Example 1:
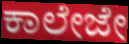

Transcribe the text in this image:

ಕಾಲೇಜೇ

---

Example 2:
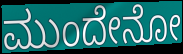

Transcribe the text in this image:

ಮುಂದೇನೋ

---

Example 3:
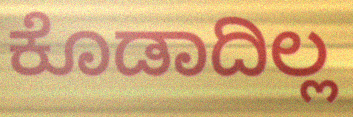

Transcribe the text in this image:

ಕೊಡಾದಿಲ್ಲ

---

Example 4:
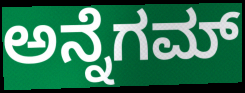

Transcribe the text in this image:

ಅನ್ನೆಗಮ್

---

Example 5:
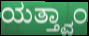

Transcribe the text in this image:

ಯತ್ತ್ವಾಂ